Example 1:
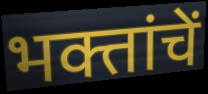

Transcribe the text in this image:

भक्तांचें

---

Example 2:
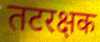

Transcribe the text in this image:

तटरक्षक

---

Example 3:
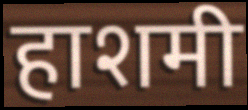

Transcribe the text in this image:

हाशमी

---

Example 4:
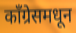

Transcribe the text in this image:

काँग्रेसमधून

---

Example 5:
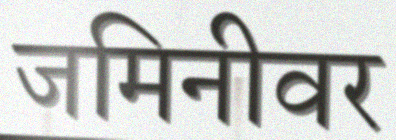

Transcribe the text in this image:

जमिनीवर